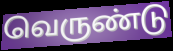
வெருண்டு